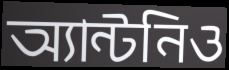
অ্যান্টনিও